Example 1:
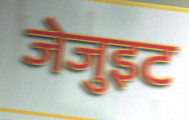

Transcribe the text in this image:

जेजुइट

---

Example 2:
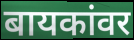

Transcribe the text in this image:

बायकांवर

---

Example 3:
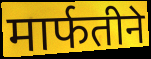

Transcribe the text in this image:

मार्फतीने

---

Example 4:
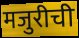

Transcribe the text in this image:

मजुरीची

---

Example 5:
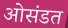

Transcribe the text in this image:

ओसंडत